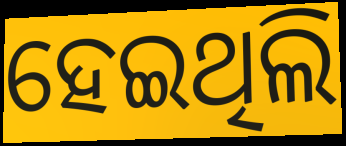
ହେଇଥିଲି